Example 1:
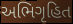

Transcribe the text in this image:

અભિગૃહિત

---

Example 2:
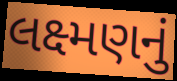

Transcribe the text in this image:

લક્ષ્મણનું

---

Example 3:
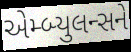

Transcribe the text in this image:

એમ્બ્યુલન્સને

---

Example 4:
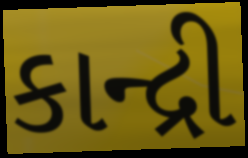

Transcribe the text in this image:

કાન્દ્રી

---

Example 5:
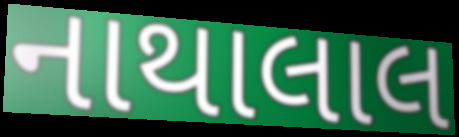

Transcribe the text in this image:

નાથાલાલ